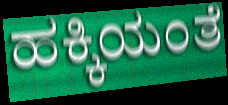
ಹಕ್ಕಿಯಂತೆ